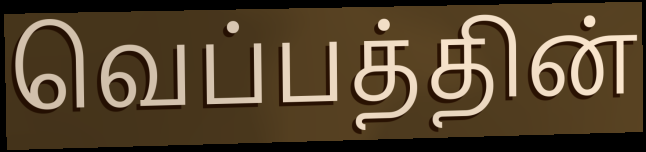
வெப்பத்தின்